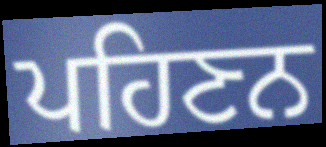
ਪਹਿਣਨ